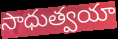
సాధుత్వయా